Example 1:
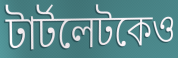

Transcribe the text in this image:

টার্টলেটকেও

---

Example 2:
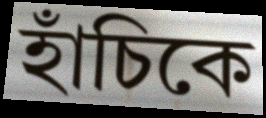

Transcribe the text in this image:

হাঁচিকে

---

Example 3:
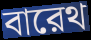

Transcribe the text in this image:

বারেথ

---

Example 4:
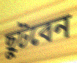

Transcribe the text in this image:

ছুটবেন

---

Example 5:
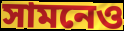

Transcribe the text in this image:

সামনেও